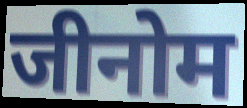
जीनोम